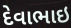
દેવાભાઇ